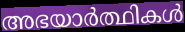
അഭയാർത്ഥികൾ